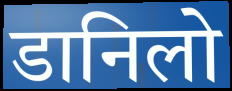
डानिलो